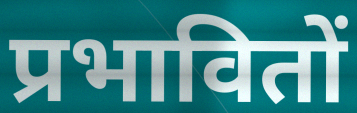
प्रभावितों